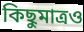
কিছুমাত্রও